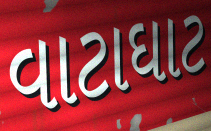
વાટાઘાટ